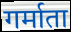
गर्माता